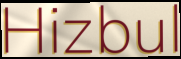
Hizbul